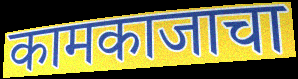
कामकाजाचा